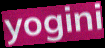
yogini